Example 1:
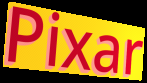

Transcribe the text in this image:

Pixar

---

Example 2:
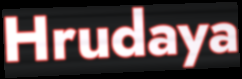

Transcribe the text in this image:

Hrudaya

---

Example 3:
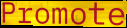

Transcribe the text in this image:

Promote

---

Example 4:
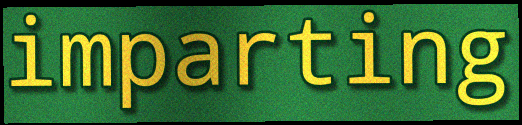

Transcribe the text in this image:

imparting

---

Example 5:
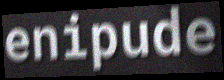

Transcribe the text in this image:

enipude